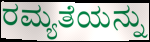
ರಮ್ಯತೆಯನ್ನು